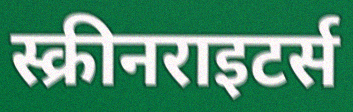
स्क्रीनराइटर्स